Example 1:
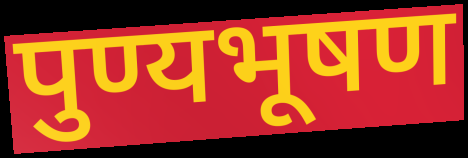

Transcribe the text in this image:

पुण्यभूषण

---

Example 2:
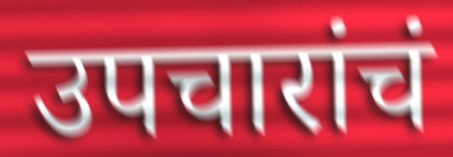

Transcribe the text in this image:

उपचारांचं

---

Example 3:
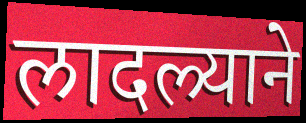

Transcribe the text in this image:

लादल्याने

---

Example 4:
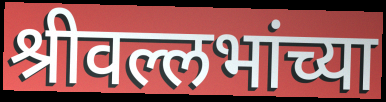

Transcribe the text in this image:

श्रीवल्लभांच्या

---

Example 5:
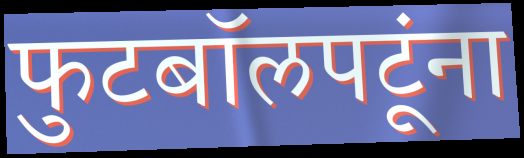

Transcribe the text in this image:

फुटबॉलपटूंना